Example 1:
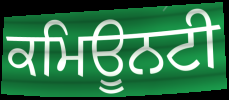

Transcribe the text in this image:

ਕਮਿਊਨਟੀ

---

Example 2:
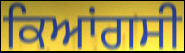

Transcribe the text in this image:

ਕਿਆਂਗਸੀ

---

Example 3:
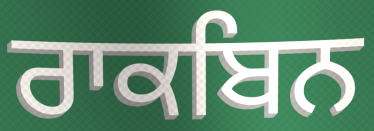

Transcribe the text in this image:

ਰਾਕਬਿਨ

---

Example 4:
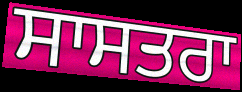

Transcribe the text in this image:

ਸਾਸਤਰਾ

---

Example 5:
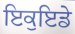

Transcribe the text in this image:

ਇਕੁਇਡੇ